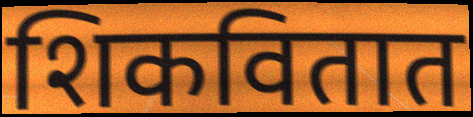
शिकवितात